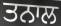
ਤਨਾਲ